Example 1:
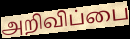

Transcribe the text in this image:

அறிவிப்பை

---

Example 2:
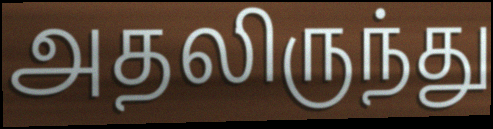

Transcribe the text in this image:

அதலிருந்து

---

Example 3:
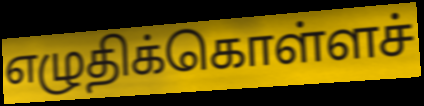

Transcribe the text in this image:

எழுதிக்கொள்ளச்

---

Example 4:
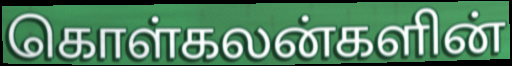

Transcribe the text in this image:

கொள்கலன்களின்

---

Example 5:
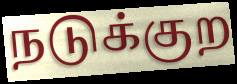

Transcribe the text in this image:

நடுக்குற